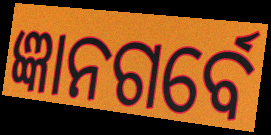
ଜ୍ଞାନଗର୍ବେ